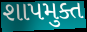
શાપમુક્ત